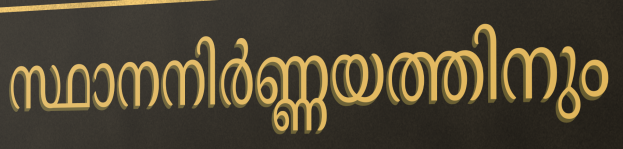
സ്ഥാനനിർണ്ണയത്തിനും